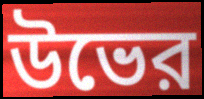
উভের